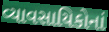
વ્યાવસાયિકોનાં